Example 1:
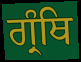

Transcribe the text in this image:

ਗ੍ਰੰਥਿ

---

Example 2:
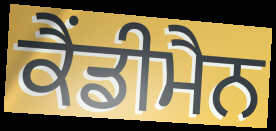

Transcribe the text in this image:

ਕੈਂਡੀਮੈਨ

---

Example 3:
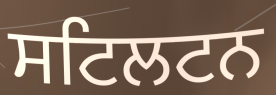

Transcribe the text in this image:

ਸਟਿਲਟਨ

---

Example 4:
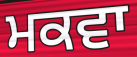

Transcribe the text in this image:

ਮਕਵਾ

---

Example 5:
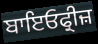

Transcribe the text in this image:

ਬਾਇਓਫ੍ਰੀਜ਼